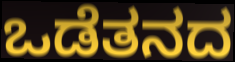
ಒಡೆತನದ